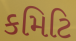
કમિટિ